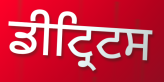
ਡੀਟ੍ਰਿਟਸ